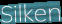
Silken